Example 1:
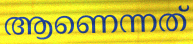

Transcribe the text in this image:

ആണെന്നത്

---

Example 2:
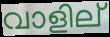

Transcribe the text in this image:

വാളില്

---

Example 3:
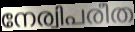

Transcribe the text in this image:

നേര്വിപരീത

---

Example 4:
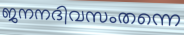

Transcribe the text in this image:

ജനനദിവസംതന്നെ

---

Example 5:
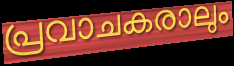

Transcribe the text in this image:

പ്രവാചകരാലും